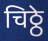
चिठ्ठे